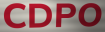
CDPO